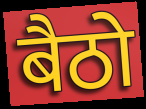
बैठो